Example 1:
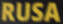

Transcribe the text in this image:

RUSA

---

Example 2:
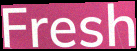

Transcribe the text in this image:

Fresh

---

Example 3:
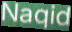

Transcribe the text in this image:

Naqid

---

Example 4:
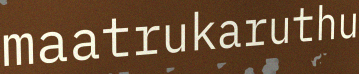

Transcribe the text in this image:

maatrukaruthu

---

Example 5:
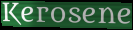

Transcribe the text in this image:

Kerosene